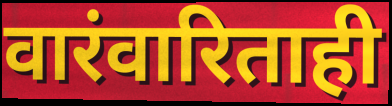
वारंवारिताही